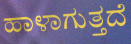
ಹಾಳಾಗುತ್ತದೆ